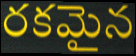
రకమైన